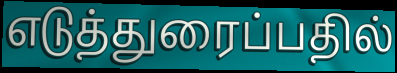
எடுத்துரைப்பதில்